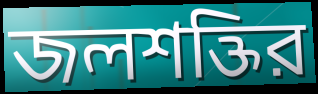
জলশক্তির